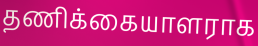
தணிக்கையாளராக